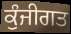
ਕੁੰਜੀਗਤ